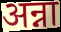
अन्ना